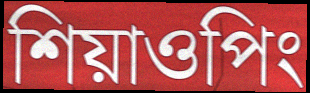
শিয়াওপিং